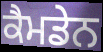
ਕੈਮਡੇਨ